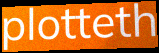
plotteth